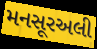
મનસૂરઅલી